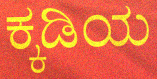
ಕ್ಕಡಿಯ